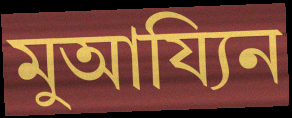
মুআয্যিন